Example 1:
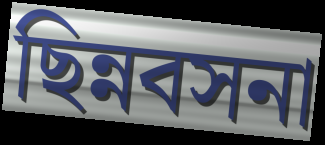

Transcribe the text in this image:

ছিন্নবসনা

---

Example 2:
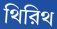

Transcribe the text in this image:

থিরিথ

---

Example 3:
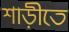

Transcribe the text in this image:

শাড়ীতে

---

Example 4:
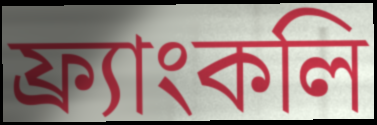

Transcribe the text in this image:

ফ্র্যাংকলি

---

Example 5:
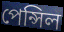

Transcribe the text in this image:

পেন্সিল